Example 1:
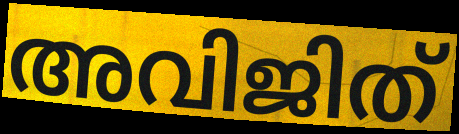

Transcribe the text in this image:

അവിജിത്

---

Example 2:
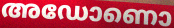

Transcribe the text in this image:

അഡോണൊ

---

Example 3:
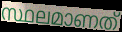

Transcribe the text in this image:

സ്ഥലമാണത്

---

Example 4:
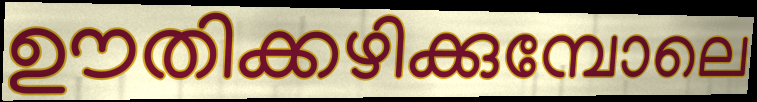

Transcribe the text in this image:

ഊതിക്കഴിക്കുമ്പോലെ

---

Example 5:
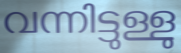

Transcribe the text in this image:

വന്നിട്ടുള്ളു